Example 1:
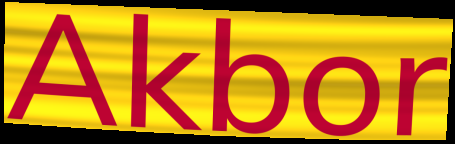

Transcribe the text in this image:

Akbor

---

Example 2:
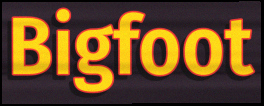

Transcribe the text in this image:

Bigfoot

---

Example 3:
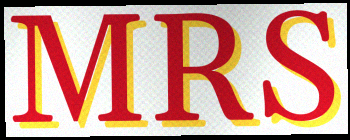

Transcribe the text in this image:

MRS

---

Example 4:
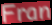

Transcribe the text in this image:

Fran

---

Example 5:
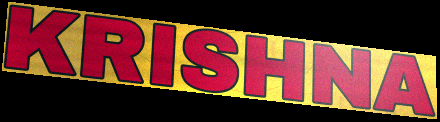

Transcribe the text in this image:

KRISHNA